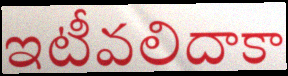
ఇటీవలిదాకా